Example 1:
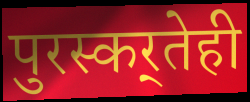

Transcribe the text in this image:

पुरस्कर्तेही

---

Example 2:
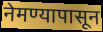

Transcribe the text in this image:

नेमण्यापासून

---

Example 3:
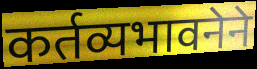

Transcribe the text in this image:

कर्तव्यभावनेने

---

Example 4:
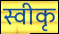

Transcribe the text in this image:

स्वीकृ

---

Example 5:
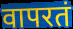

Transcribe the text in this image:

वापरतं